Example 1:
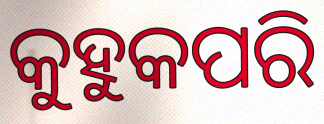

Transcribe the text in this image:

କୁହୁକପରି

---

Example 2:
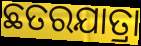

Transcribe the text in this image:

ଛତରଯାତ୍ରା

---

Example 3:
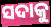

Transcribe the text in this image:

ସଦାକୁ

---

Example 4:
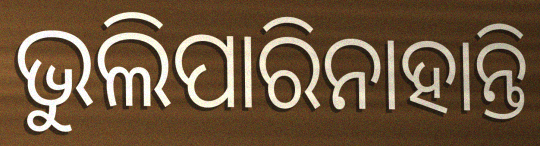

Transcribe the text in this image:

ଭୁଲିପାରିନାହାନ୍ତି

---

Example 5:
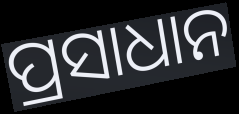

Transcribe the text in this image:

ପ୍ରସାଧାନ